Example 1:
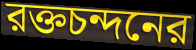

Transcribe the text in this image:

রক্তচন্দনের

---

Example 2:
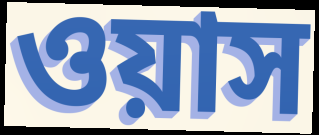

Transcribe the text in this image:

ওয়াস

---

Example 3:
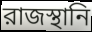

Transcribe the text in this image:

রাজস্থানি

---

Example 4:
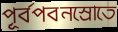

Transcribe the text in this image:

পূর্বপবনস্রোতে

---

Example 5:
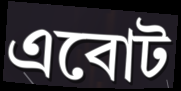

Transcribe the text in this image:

এবোট